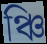
ঞ্চি